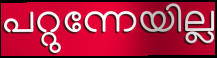
പറ്റുന്നേയില്ല